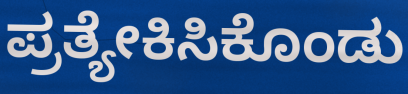
ಪ್ರತ್ಯೇಕಿಸಿಕೊಂಡು